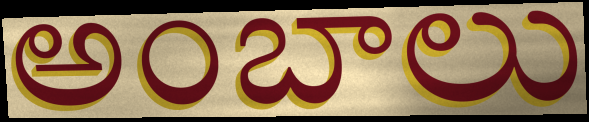
అంబాలు